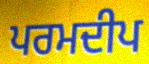
ਪਰਮਦੀਪ